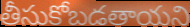
తీసుకోబడతాయని